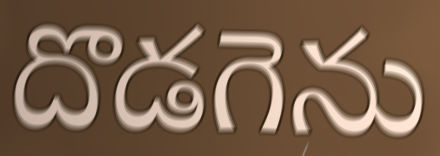
దొడగెను